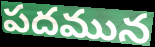
పదమున